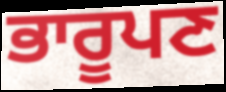
ਭਾਰੂਪਣ